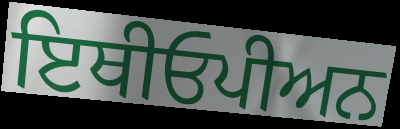
ਇਥੀਓਪੀਅਨ